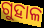
ଗୁହାଳ